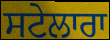
ਸਟੇਲਾਰਾ